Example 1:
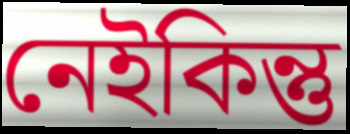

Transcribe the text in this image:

নেইকিন্তু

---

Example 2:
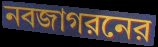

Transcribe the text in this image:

নবজাগরনের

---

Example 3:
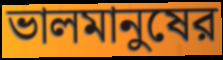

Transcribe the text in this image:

ভালমানুষের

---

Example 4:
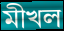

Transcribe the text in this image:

মীখল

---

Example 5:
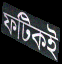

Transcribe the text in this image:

ফটিকই